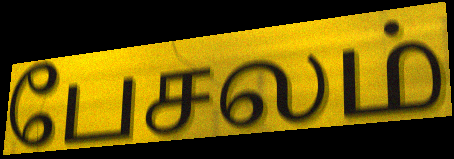
பேசலம்